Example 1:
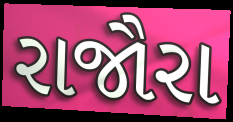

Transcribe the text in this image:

રાજૌરા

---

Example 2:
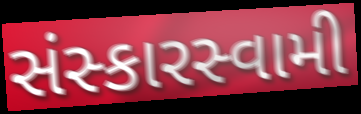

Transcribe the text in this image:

સંસ્કારસ્વામી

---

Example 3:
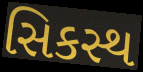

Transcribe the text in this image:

સિકસ્થ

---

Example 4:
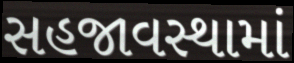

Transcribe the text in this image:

સહજાવસ્થામાં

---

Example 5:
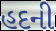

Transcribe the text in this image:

હદની